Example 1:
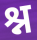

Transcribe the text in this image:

श्न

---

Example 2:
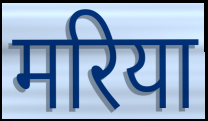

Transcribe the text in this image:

मरिया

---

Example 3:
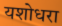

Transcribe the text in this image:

यशोधरा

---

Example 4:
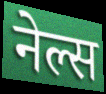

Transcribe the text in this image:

नेल्स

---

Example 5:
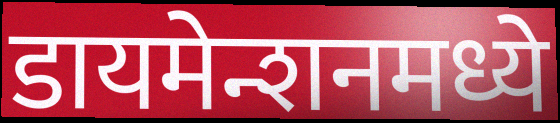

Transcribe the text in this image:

डायमेन्शनमध्ये